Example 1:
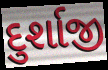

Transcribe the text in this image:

દુર્શાજી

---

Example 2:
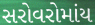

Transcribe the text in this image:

સરોવરોમાંય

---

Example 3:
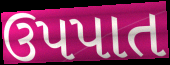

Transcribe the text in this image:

ઉપપાત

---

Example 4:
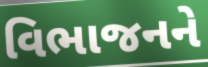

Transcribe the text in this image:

વિભાજનને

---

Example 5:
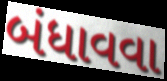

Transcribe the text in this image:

બંધાવવા